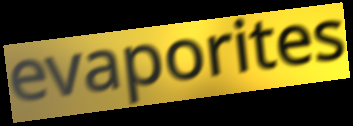
evaporites